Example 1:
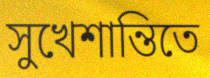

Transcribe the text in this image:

সুখেশান্তিতে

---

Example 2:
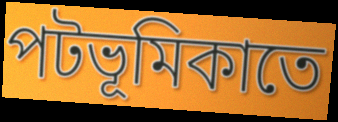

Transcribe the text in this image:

পটভূমিকাতে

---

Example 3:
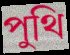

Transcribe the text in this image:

পুথি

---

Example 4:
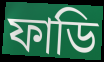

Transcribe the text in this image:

ফাডি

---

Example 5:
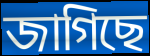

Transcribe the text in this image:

জাগিছে